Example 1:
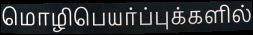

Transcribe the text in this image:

மொழிபெயர்ப்புக்களில்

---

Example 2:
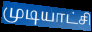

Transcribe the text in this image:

முடியாட்சி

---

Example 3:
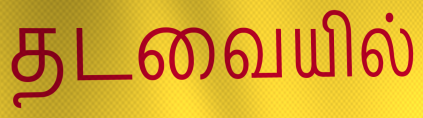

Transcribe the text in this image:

தடவையில்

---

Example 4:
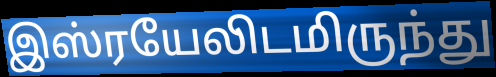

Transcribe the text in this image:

இஸ்ரயேலிடமிருந்து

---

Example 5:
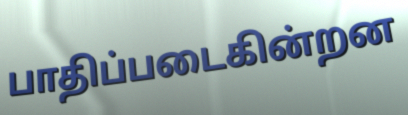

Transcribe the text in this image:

பாதிப்படைகின்றன